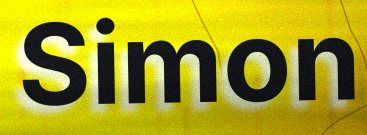
Simon